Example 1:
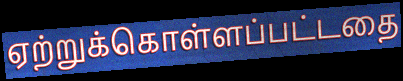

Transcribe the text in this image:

ஏற்றுக்கொள்ளப்பட்டதை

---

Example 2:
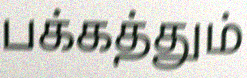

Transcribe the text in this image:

பக்கத்தும்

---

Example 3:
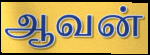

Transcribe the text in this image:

ஆவன்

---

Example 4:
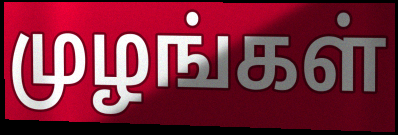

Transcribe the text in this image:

முழங்கள்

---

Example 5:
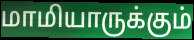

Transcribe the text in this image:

மாமியாருக்கும்